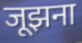
जूझना